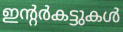
ഇന്റർകട്ടുകൾ